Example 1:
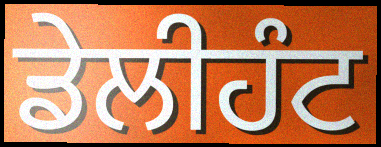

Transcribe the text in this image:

ਡੇਲੀਹੰਟ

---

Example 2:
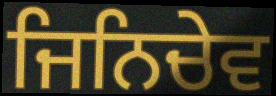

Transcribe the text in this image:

ਜਿਨਿਚੇਵ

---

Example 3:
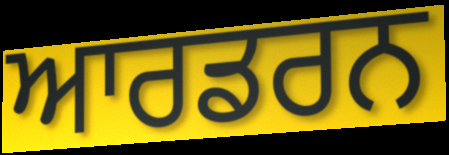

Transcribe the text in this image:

ਆਰਡਰਨ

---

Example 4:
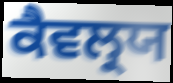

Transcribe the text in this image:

ਕੈਵਲ੍ਰਯ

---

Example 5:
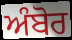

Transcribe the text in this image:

ਅੰਬੋਰ